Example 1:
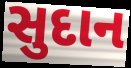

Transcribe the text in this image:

સુદાન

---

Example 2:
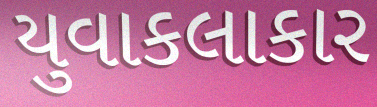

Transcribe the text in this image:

યુવાકલાકાર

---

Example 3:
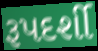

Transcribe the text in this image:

રૂપદર્શી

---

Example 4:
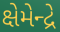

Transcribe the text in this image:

ક્ષેમેન્દ્રે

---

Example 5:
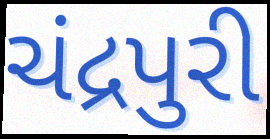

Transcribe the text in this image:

ચંદ્રપુરી